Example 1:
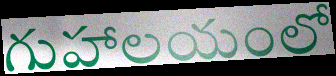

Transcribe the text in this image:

గుహాలయంలో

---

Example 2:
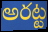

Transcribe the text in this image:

అరట్ట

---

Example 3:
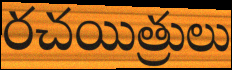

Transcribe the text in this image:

రచయిత్రులు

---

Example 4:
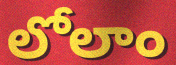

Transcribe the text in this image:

లోలాం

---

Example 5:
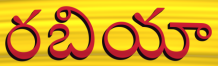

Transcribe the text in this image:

రబియా